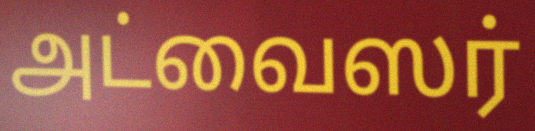
அட்வைஸர்